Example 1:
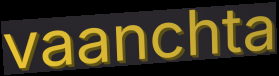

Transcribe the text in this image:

vaanchta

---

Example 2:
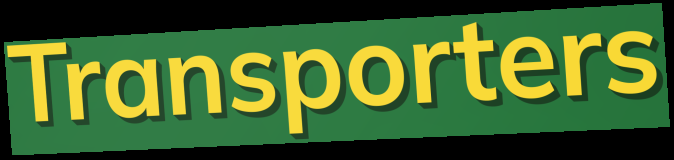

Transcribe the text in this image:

Transporters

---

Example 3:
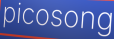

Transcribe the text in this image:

picosong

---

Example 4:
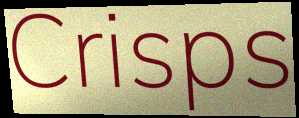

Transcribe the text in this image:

Crisps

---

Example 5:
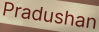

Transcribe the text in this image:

Pradushan